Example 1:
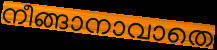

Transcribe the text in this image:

നീങ്ങാനാവാതെ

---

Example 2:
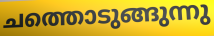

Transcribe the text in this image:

ചത്തൊടുങ്ങുന്നു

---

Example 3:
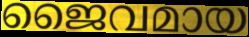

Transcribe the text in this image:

ജൈവമായ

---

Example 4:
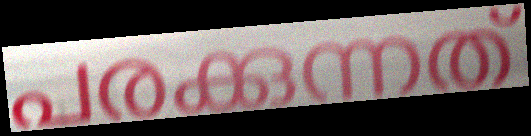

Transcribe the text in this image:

പരക്കുന്നത്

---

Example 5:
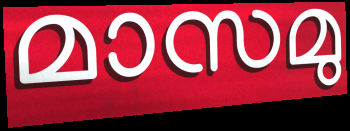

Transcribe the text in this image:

മാസമു